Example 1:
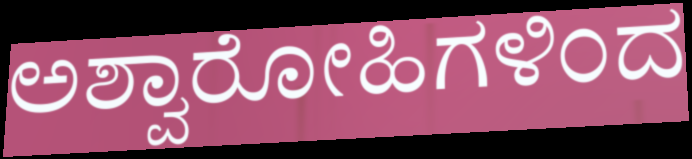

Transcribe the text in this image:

ಅಶ್ವಾರೋಹಿಗಳಿಂದ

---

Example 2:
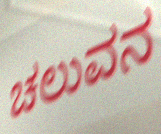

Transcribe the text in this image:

ಚಲುವನ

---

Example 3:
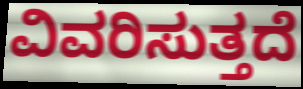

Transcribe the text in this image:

ವಿವರಿಸುತ್ತದೆ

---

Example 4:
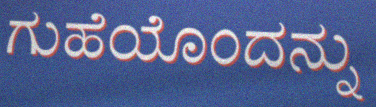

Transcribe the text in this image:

ಗುಹೆಯೊಂದನ್ನು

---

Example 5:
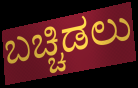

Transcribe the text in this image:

ಬಚ್ಚಿಡಲು